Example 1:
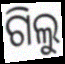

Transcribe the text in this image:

ଗିଲୁ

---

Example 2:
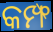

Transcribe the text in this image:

କମ୍ଫ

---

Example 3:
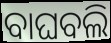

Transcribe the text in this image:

ବାଘବଲି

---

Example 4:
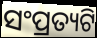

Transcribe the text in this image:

ସଂପ୍ରତ୍ୟଟି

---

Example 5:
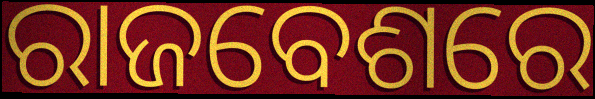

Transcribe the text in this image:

ରାଜବେଶରେ